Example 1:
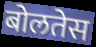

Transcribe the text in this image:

बोलतेस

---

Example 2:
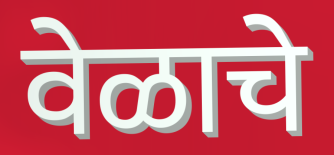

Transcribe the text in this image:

वेळाचे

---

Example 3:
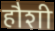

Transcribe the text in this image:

हौशी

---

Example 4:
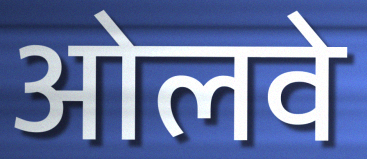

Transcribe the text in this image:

ओलवे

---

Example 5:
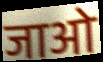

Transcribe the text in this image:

जाओ